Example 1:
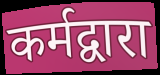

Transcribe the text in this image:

कर्मद्वारा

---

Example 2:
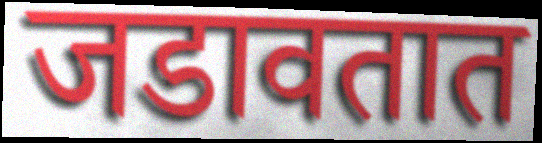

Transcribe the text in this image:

जडावतात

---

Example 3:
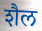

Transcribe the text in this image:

शैल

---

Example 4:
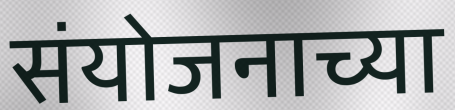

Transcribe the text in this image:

संयोजनाच्या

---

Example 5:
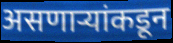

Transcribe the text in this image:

असणाऱ्यांकडून